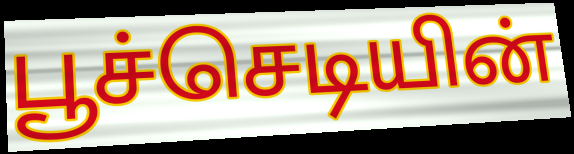
பூச்செடியின்